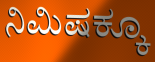
ನಿಮಿಷಕ್ಕೂ